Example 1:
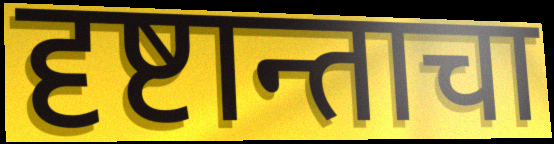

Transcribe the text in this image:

दृष्टान्ताचा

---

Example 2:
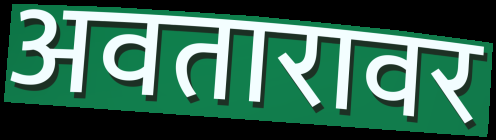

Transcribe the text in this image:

अवतारावर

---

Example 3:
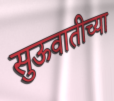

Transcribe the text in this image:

सुऊवातीच्या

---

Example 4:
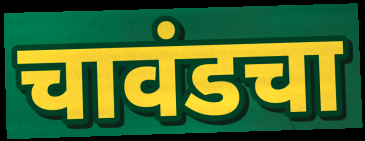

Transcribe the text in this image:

चावंडचा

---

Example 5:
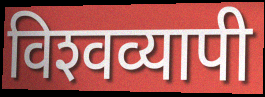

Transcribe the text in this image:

विश्‍वव्यापी